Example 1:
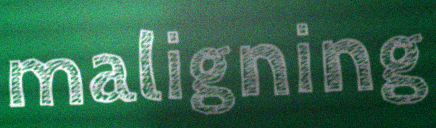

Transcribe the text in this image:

maligning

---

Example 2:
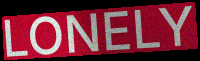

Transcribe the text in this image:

LONELY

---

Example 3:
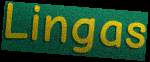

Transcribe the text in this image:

Lingas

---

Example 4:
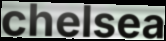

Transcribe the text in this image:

chelsea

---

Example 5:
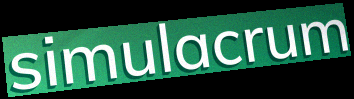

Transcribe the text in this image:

simulacrum